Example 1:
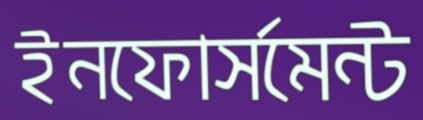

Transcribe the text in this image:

ইনফোর্সমেন্ট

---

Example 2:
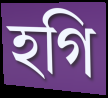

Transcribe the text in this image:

হগি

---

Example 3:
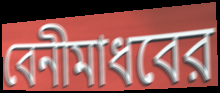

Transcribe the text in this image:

বেনীমাধবের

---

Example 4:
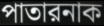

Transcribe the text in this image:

পাতারনাক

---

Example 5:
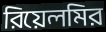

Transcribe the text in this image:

রিয়েলমির